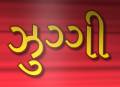
ઝુગ્ગી